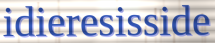
idieresisside